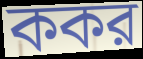
ককর